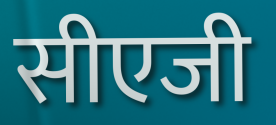
सीएजी